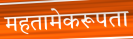
महतामेकरूपता